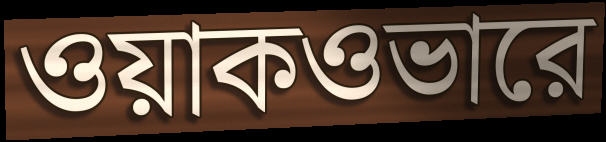
ওয়াকওভারে